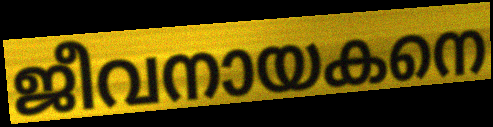
ജീവനായകനെ